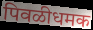
पिवळीधमक